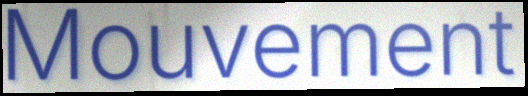
Mouvement